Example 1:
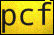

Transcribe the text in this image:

pcf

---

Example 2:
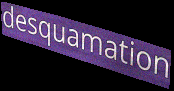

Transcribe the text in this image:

desquamation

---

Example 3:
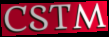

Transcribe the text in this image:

CSTM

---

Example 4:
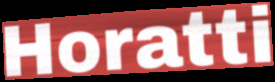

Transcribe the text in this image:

Horatti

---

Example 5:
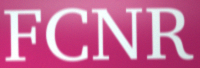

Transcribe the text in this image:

FCNR